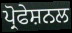
ਪ੍ਰੋਫੇਸ਼ਨਲ